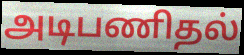
அடிபணிதல்